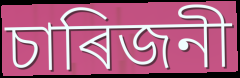
চাৰিজনী